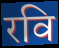
रवि